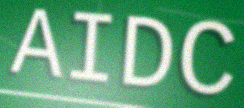
AIDC